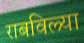
राबविल्या